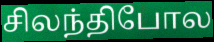
சிலந்திபோல